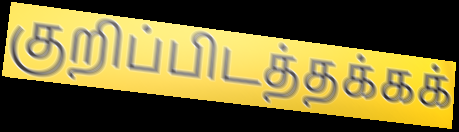
குறிப்பிடத்தக்கக்